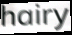
hairy